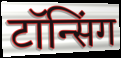
टॉन्सिंग